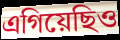
এগিয়েছিও